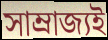
সাম্ৰাজ্যই